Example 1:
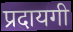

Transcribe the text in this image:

प्रदायगी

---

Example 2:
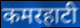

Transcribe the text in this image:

कमरहाटी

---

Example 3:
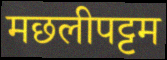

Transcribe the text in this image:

मछलीपट्टम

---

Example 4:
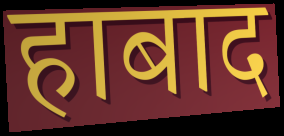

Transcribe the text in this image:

हाबाद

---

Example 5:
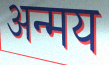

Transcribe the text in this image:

अन्मय